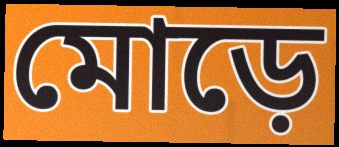
মোড়ে